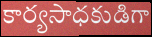
కార్యసాధకుడిగా